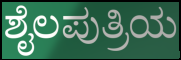
ಶೈಲಪುತ್ರಿಯ